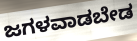
ಜಗಳವಾಡಬೇಡ